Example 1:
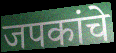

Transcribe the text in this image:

जपकांचे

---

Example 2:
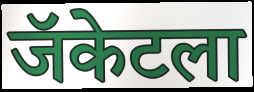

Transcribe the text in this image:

जॅकेटला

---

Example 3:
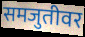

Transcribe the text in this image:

समजुतीवर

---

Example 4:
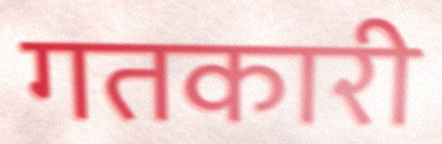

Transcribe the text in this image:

गतकारी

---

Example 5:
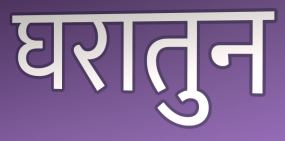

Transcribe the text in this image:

घरातुन